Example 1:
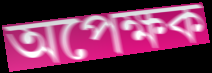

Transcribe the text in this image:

অপেক্ষক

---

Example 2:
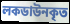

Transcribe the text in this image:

লকডাউনকৃত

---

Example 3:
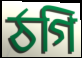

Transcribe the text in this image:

ঠগি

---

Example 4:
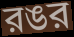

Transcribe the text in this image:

রঙর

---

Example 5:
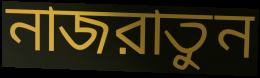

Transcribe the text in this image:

নাজরাতুন